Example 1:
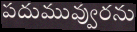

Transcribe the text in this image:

పదుమువ్వురను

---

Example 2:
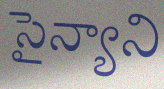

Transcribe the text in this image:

సైన్యాని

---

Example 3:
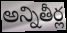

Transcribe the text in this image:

అన్నితీర్ల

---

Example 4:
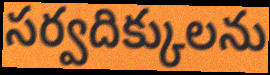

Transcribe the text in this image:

సర్వదిక్కులను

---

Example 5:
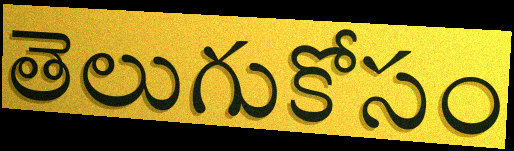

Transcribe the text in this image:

తెలుగుకోసం